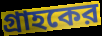
গ্রাহকের